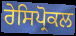
ਰੇਸਿਪ੍ਰੋਕਲ